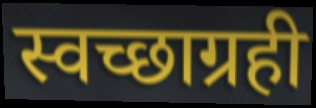
स्वच्छाग्रही